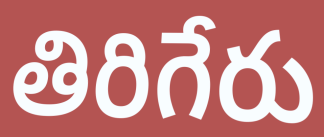
తిరిగేరు